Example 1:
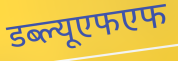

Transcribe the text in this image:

डब्ल्यूएफएफ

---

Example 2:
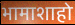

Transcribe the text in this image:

भामाशाहो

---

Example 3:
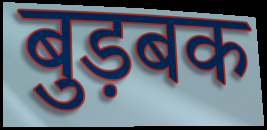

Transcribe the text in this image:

बुड़बक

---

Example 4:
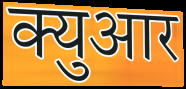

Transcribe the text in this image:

क्युआर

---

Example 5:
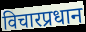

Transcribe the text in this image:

विचारप्रधान